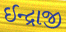
ઈન્દ્રાજી